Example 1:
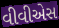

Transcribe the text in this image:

વીવીએસ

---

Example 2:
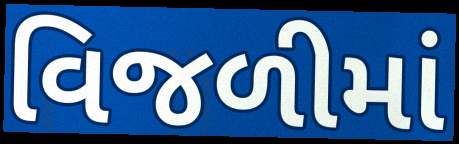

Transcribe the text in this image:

વિજળીમાં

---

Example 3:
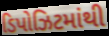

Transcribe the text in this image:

ડિપોઝિટમાંથી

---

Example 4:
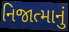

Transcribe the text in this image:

નિજાત્માનું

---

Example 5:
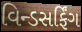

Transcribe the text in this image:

વિન્ડસર્ફિંગ